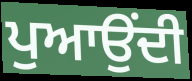
ਪੁਆਉਂਦੀ